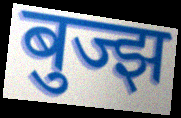
बुज्झ